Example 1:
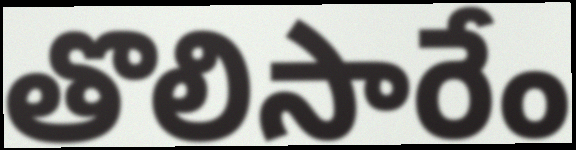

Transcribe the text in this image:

తొలిసారేం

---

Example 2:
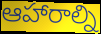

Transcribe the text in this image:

ఆహారాల్ని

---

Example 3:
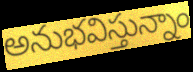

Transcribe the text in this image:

అనుభవిస్తున్నాం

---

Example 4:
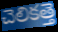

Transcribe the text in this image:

చెలికత్తె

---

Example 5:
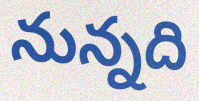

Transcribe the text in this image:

నున్నది